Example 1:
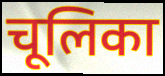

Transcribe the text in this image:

चूलिका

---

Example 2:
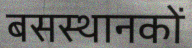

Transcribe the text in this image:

बसस्थानकों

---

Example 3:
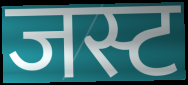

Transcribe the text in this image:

जस्ट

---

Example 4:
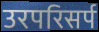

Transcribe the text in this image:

उरपरिसर्प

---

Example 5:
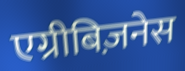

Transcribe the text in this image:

एग्रीबिज़नेस